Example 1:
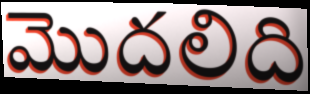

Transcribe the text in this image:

మొదలిది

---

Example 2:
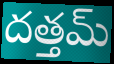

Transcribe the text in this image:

దత్తమ్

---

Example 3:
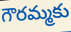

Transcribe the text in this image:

గౌరమ్మకు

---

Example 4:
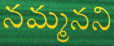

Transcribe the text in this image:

నమ్మనని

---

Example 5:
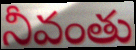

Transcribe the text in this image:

నీవంతు